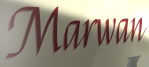
Marwan